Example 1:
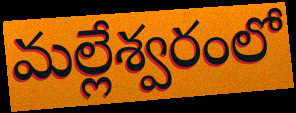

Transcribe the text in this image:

మల్లేశ్వరంలో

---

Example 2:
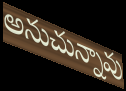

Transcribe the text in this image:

అనుచున్నావు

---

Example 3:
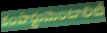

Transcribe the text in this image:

కంపార్టుమెంటాలిటీ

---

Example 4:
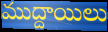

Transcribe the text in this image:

ముద్దాయిలు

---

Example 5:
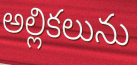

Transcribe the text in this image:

అల్లికలును